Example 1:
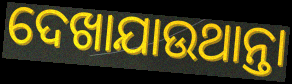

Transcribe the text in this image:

ଦେଖାଯାଉଥାନ୍ତା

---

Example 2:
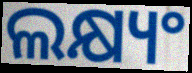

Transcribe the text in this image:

ଲକ୍ଷ୍ୟଂ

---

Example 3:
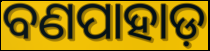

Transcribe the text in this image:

ବଣପାହାଡ଼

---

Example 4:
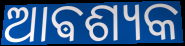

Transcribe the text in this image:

ଆଵଶ୍ୟକ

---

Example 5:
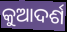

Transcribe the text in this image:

କୁଆଦର୍ଶ